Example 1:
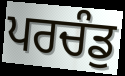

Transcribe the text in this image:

ਪਰਚੰਡੁ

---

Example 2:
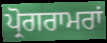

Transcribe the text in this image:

ਪ੍ਰੋਗਰਾਮਰਾਂ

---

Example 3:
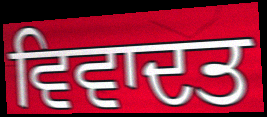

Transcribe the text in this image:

ਵਿਵਾਦਤ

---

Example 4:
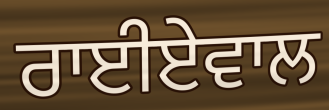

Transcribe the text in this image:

ਰਾਈਏਵਾਲ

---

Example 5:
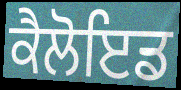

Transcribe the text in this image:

ਕੈਲੋਇਡ